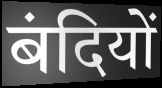
बंदियों